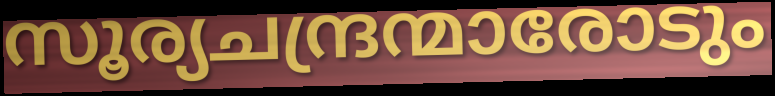
സൂര്യചന്ദ്രന്മാരോടും